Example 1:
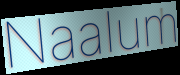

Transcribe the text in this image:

Naalum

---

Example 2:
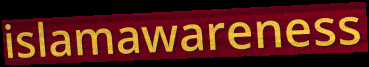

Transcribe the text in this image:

islamawareness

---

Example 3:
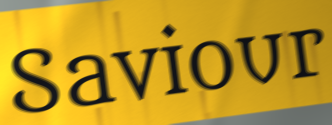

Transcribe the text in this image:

Saviour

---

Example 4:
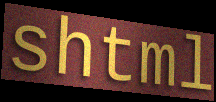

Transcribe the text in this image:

shtml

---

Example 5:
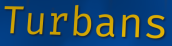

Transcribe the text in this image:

Turbans